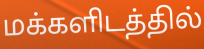
மக்களிடத்தில்